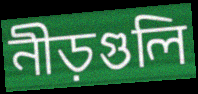
নীড়গুলি